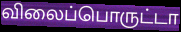
விலைப்பொருட்டா